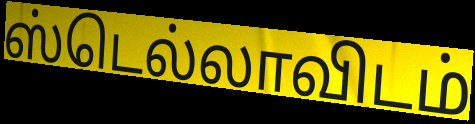
ஸ்டெல்லாவிடம்